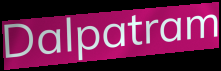
Dalpatram